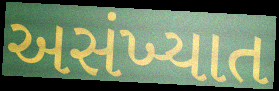
અસંખ્યાત